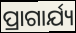
ପ୍ରାଗାର୍ଯ୍ୟ